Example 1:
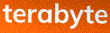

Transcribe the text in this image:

terabyte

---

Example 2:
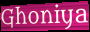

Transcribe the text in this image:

Ghoniya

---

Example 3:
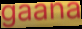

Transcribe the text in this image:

gaana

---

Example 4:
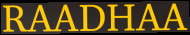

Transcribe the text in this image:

RAADHAA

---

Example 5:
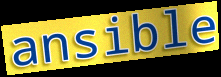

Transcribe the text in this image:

ansible